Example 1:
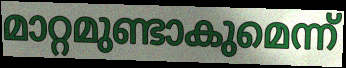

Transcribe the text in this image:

മാറ്റമുണ്ടാകുമെന്ന്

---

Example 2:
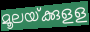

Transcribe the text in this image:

മൂലയ്‌ക്കുളള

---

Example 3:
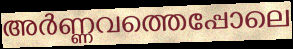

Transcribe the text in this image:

അർണ്ണവത്തെപ്പോലെ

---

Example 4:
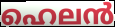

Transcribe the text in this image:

ഹെലൻ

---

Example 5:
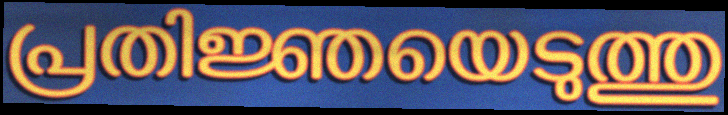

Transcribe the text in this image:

പ്രതിജ്ഞയെടുത്തു